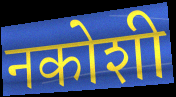
नकोशी